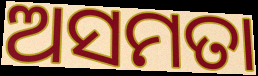
ଅସମତା